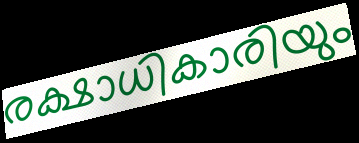
രക്ഷാധികാരിയും